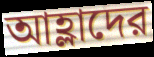
আহ্লাদের